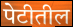
पेटीतील